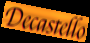
Decastello